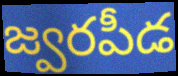
జ్వరపీడ